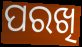
ପରଖି